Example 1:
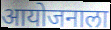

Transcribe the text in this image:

आयोजनाला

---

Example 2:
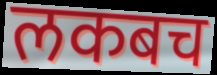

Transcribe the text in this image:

लकबच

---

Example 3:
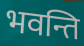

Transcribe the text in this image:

भवन्ति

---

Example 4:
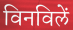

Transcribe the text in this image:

विनविलें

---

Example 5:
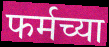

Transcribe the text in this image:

फर्मच्या